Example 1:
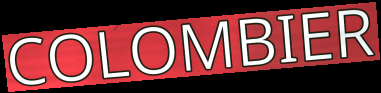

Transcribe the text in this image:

COLOMBIER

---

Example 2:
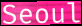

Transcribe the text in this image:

Seoul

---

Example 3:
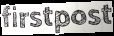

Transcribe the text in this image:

firstpost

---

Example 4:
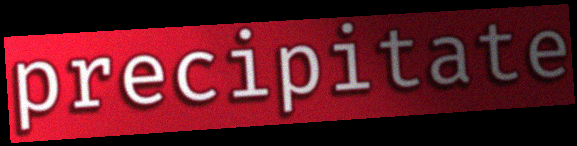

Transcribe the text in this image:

precipitate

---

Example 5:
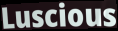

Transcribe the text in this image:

Luscious